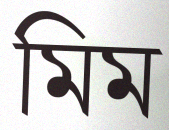
মিম